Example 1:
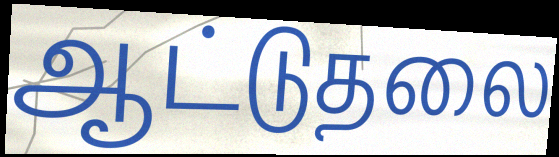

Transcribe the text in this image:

ஆட்டுதலை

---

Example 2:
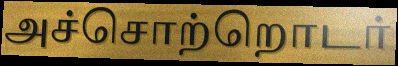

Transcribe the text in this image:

அச்சொற்றொடர்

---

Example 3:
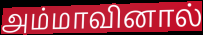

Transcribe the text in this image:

அம்மாவினால்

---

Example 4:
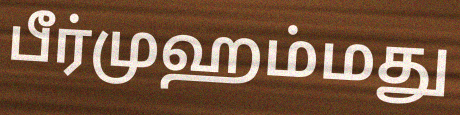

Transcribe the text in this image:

பீர்முஹம்மது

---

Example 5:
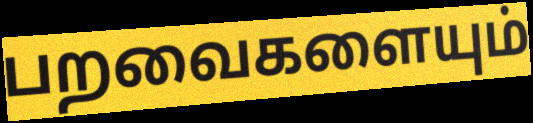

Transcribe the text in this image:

பறவைகளையும்